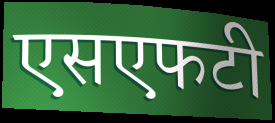
एसएफटी